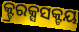
କ୍ଟ୍ରରକ୍ସସକ୍ଟୟ